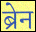
ब्रेन